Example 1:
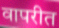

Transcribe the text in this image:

वापरीत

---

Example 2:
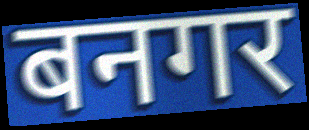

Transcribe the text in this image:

बनगर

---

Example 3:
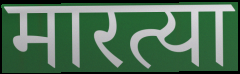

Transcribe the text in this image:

मारत्या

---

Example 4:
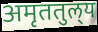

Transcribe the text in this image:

अमृततुल्य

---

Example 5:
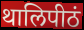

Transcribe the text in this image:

थालिपीठं